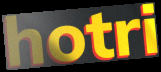
hotri